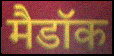
मैडॉक